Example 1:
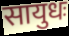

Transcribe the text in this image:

सायुधः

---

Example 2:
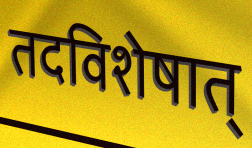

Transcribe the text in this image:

तदविशेषात्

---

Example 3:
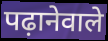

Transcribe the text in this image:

पढ़ानेवाले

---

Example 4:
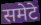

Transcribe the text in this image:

समेटे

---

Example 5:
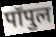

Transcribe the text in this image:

पॉपुल